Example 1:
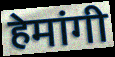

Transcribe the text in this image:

हेमांगी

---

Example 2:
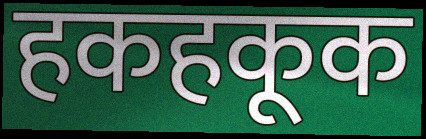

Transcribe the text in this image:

हकहकूक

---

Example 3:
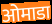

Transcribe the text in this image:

ओमाडा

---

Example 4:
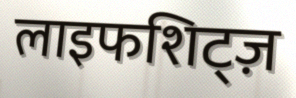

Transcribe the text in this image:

लाइफशिट्ज़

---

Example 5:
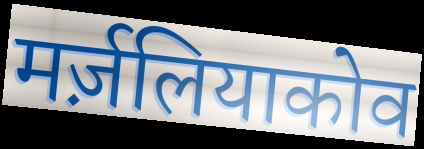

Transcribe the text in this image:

मर्ज़लियाकोव